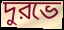
দুরভে